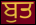
ਬੁਤ